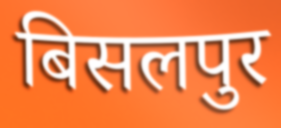
बिसलपुर